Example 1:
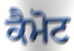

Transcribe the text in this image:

ਕੈਮੋਟ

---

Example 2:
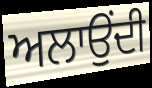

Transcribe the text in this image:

ਅਲਾਉਂਦੀ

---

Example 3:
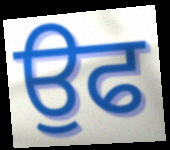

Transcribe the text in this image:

ਉਫ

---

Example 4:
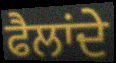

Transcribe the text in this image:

ਫੈਲਾਂਦੇ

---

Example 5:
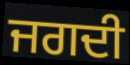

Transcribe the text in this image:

ਜਗਦੀ